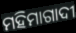
ମହିମାଗାଦୀ